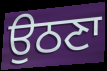
ਉਠਣਾ